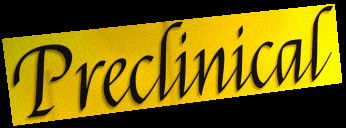
Preclinical